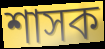
শাসক